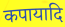
कपायादि